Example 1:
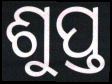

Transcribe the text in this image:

ଶୁପ୍ତ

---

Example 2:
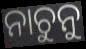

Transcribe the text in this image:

ନାଚୁନୁ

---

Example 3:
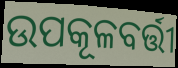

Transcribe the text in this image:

ଉପକୂଳବର୍ତ୍ତୀ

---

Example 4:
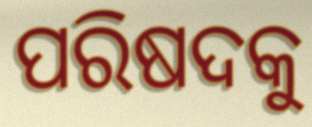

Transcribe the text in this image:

ପରିଷଦକୁ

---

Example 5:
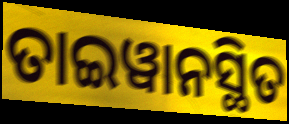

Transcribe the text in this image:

ତାଇୱାନସ୍ଥିତ